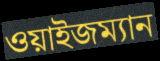
ওয়াইজম্যান